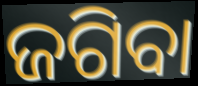
ଜଗିବା